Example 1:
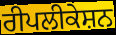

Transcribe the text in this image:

ਰੀਪਲੀਕੇਸ਼ਨ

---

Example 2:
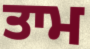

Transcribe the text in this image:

ਤਾਮ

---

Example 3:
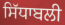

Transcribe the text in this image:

ਸਿੱਧਾਬਲੀ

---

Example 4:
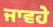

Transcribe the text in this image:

ਜਾਵਹੇ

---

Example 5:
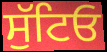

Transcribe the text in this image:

ਸੁੱਟਿਓ